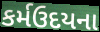
કર્મઉદયના